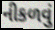
નીકળવું